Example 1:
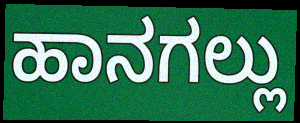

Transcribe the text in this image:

ಹಾನಗಲ್ಲು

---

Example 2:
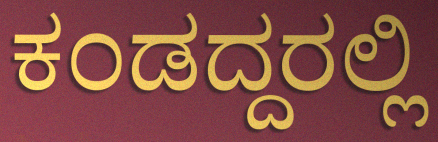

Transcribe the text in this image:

ಕಂಡದ್ದರಲ್ಲಿ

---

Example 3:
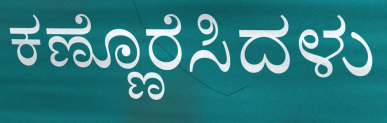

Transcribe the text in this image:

ಕಣ್ಣೊರೆಸಿದಳು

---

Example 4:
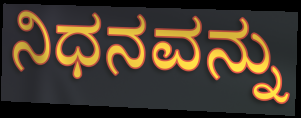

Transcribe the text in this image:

ನಿಧನವನ್ನು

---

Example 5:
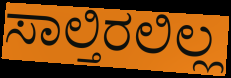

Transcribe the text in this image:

ಸಾಲ್ತಿರಲಿಲ್ಲ